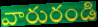
వారురండి